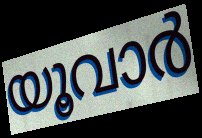
യൂവാർ